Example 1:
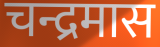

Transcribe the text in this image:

चन्द्रमास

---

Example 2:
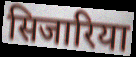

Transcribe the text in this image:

सिजारिया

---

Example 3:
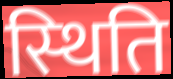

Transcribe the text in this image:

स्‍थिति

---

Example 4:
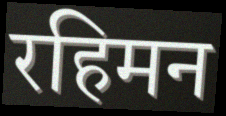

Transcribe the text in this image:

रहिमन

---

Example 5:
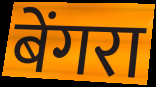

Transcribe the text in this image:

बेंगरा